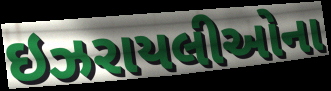
ઇઝરાયલીઓના